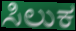
ಸಿಲುಕ